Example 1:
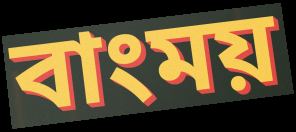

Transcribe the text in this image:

বাংময়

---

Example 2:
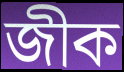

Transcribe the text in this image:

জীক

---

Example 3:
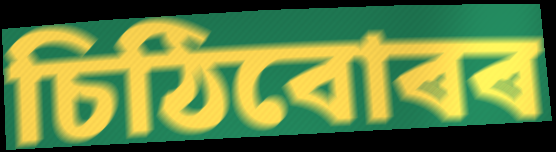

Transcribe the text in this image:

চিঠিবোৰৰ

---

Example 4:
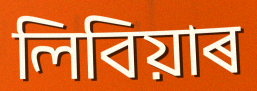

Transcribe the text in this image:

লিবিয়াৰ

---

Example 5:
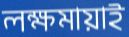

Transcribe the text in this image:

লক্ষমায়াই